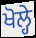
ਖੋਲ੍ਹੇ